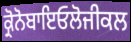
ਕ੍ਰੋਨੋਬਾਇਓਲੋਜੀਕਲ